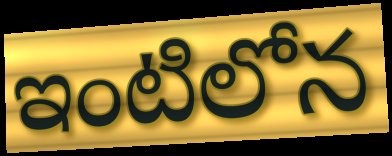
ఇంటిలోన